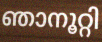
ഞാനൂറ്റി